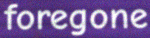
foregone